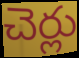
చెర్లు